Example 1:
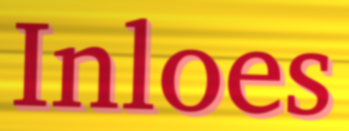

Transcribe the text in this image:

Inloes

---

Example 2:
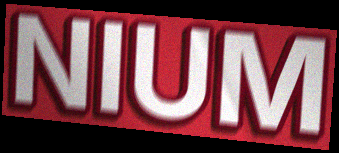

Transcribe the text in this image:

NIUM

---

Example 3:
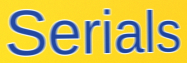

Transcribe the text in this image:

Serials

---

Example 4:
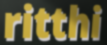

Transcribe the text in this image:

ritthi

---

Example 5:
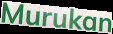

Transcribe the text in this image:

Murukan